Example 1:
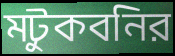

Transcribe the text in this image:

মটুকবনির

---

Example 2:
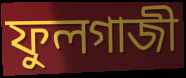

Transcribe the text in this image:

ফুলগাজী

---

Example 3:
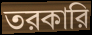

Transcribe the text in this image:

তরকারি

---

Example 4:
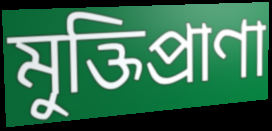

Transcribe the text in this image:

মুক্তিপ্রাণা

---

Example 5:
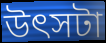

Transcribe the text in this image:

উৎসটা